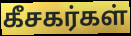
கீசகர்கள்